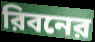
রিবনের